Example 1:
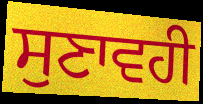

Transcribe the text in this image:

ਸੁਣਾਵਹੀ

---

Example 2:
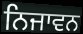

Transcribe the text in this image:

ਨਿਜਾਵਨ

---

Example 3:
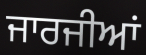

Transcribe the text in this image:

ਜਾਰਜੀਆਂ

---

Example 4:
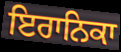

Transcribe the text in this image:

ਇਰਾਨਿਕਾ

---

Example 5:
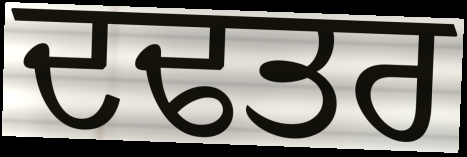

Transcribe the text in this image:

ਦਢਤਰ